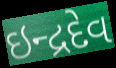
ઇન્દ્રદેવ